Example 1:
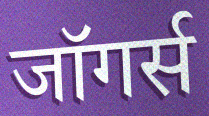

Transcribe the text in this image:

जॉगर्स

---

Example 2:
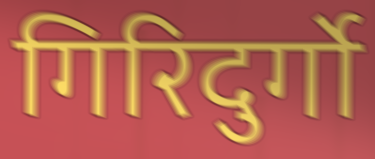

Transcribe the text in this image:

गिरिदुर्गो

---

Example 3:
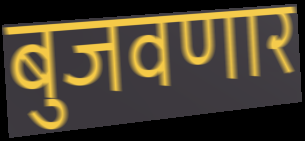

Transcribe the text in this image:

बुजवणार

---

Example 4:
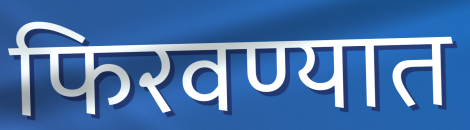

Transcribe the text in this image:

फिरवण्यात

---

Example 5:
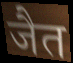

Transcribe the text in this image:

जैत